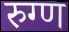
रुग्ण